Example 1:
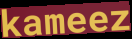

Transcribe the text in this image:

kameez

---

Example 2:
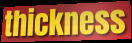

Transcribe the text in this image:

thickness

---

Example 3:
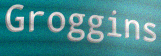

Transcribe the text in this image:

Groggins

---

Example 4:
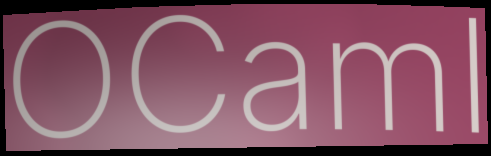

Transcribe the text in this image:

OCaml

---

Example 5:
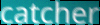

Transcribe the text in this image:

catcher